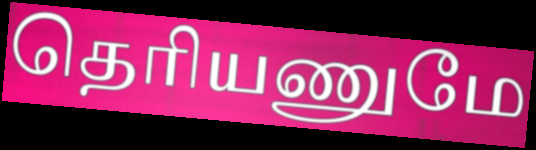
தெரியணுமே